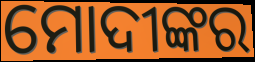
ମୋଦୀଙ୍କର